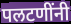
पलटणींनी